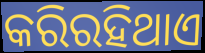
କରିରହିଥାଏ